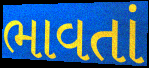
ભાવતાં